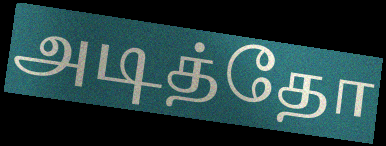
அடித்தோ